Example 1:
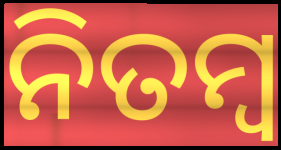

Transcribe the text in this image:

ନିତମ୍ୱ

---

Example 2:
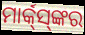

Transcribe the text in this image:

ମାର୍କ୍‍ସ୍‍ଙ୍କର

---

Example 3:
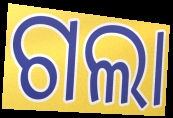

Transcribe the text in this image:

ଗଲା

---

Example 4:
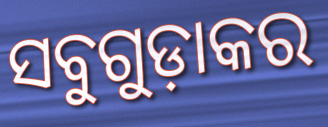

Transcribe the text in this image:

ସବୁଗୁଡ଼ାକର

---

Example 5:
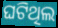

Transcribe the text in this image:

ଘଟିଥିଲ